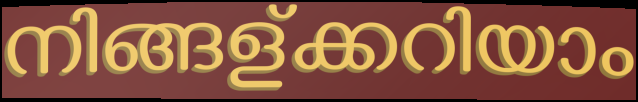
നിങ്ങള്ക്കറിയാം